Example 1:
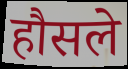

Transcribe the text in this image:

हौसले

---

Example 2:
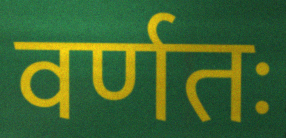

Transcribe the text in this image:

वर्णतः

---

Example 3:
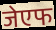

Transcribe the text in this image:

जेएफ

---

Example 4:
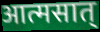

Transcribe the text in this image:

आत्मसात्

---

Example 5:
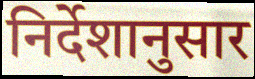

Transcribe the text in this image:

निर्देशानुसार